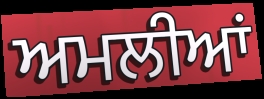
ਅਮਲੀਆਂ